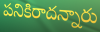
పనికిరాదన్నారు